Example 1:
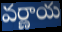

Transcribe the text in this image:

వర్ణాయ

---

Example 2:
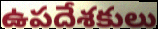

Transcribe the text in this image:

ఉపదేశకులు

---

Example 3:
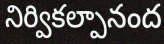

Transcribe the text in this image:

నిర్వికల్పానంద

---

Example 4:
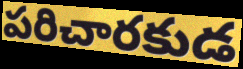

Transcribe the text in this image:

పరిచారకుడ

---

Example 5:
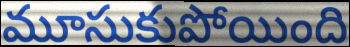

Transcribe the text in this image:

మూసుకుపోయింది